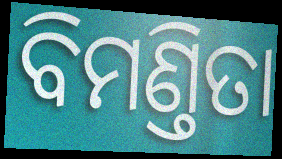
ବିମଣ୍ତିତା